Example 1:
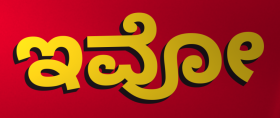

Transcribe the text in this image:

ಇವೋ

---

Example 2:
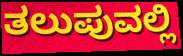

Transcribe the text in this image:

ತಲುಪುವಲ್ಲಿ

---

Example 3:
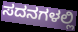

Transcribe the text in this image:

ಸದನಗಳಲ್ಲಿ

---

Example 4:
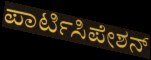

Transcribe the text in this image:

ಪಾರ್ಟಿಸಿಪೇಶನ್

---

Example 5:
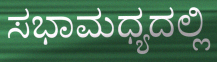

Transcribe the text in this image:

ಸಭಾಮಧ್ಯದಲ್ಲಿ